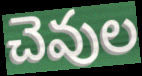
చెవుల